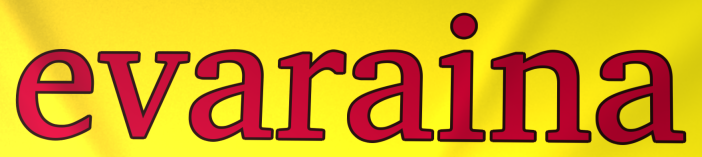
evaraina